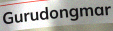
Gurudongmar